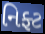
નિફ્ટ